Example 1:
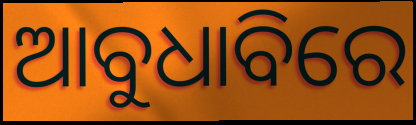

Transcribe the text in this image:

ଆବୁଧାବିରେ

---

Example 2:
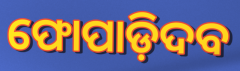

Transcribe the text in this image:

ଫୋପାଡ଼ିଦବ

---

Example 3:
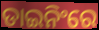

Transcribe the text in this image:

ଡାଇନିଂରେ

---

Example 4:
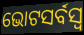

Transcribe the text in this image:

ଭୋଟସର୍ବସ୍ବ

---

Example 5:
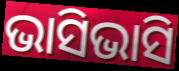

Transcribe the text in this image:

ଭାସିଭାସି